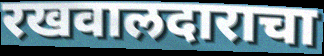
रखवालदाराचा